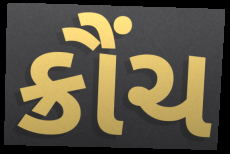
ક્રૌંચ